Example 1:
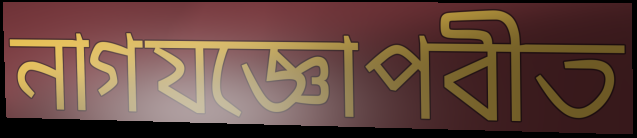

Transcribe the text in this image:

নাগযজ্ঞোপবীত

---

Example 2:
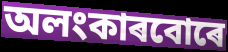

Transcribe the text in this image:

অলংকাৰবোৰে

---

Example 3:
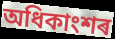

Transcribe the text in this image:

অধিকাংশৰ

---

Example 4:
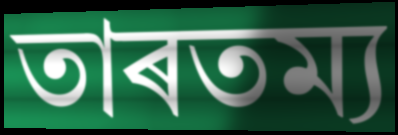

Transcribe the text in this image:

তাৰতম্য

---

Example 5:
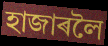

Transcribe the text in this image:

হাজাৰলৈ